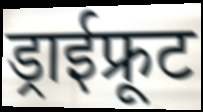
ड्राईफ्रूट